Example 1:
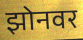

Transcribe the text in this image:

झोनवर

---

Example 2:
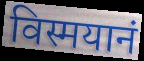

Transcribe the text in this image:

विस्मयानं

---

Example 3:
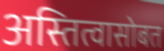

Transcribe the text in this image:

अस्तित्वासोबत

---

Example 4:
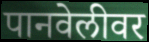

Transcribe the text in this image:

पानवेलीवर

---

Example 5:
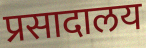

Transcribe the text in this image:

प्रसादालय